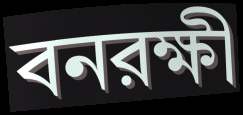
বনরক্ষী